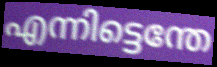
എന്നിട്ടെന്തേ